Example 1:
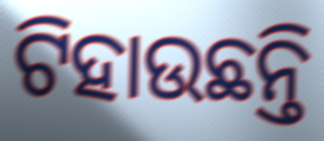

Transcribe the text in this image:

ଟିହାଉଛନ୍ତି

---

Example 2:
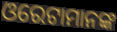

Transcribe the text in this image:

ଓରେଟାମାନଙ୍କ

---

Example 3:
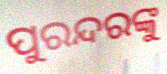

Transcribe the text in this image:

ପୁରନ୍ଦରଙ୍କୁ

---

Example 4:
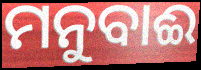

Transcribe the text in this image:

ମନୁବାଈ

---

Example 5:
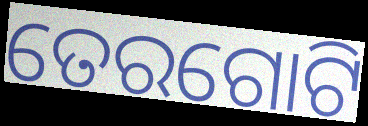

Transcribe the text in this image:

ତେରଗୋଟି